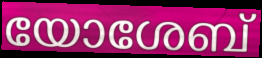
യോശേബ്